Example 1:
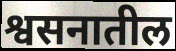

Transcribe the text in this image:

श्वसनातील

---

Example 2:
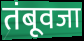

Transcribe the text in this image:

तंबूवजा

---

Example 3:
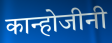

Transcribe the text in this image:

कान्होजीनी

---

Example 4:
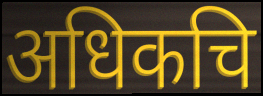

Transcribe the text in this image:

अधिकचि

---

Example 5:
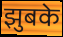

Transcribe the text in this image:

झुबके